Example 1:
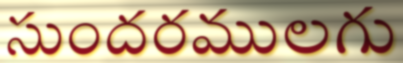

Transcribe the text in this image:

సుందరములగు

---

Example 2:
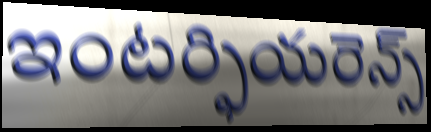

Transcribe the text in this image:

ఇంటర్ఫియరెన్స్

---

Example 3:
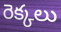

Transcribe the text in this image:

రెక్కలు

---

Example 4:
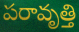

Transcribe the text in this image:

పరావృత్తి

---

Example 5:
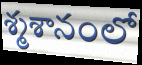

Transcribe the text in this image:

శ్మశానంలో